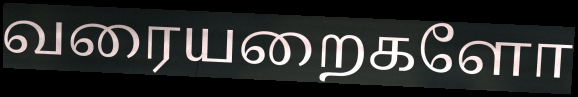
வரையறைகளோ